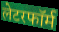
लेटरफॉर्म